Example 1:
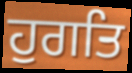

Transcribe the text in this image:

ਹੁਗਤਿ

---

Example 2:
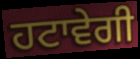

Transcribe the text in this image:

ਹਟਾਵੇਗੀ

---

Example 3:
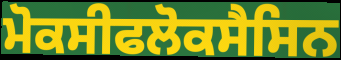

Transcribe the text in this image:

ਮੋਕਸੀਫਲੋਕਸੈਸਿਨ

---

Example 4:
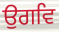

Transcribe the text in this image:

ਉਗਵਿ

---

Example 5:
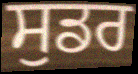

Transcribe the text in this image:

ਸੁਡਰ